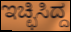
ಇಚ್ಛಿಸಿದ್ದ